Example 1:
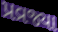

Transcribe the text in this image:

પ્રવ્રજ્યા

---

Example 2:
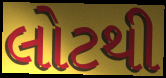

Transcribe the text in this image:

લોટથી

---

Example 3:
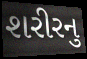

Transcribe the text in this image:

શરીરનુ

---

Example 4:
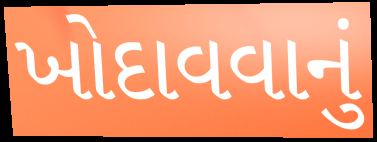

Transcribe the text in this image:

ખોદાવવાનું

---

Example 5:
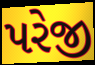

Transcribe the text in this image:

પરેજી